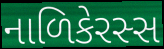
નાળિકેરસ્સ